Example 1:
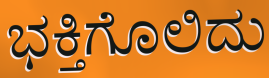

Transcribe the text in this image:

ಭಕ್ತಿಗೊಲಿದು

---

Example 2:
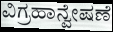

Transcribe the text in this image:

ವಿಗ್ರಹಾನ್ವೇಷಣೆ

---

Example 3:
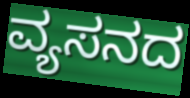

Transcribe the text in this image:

ವ್ಯಸನದ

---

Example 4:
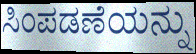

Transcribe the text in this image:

ಸಿಂಪಡಣೆಯನ್ನು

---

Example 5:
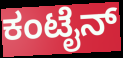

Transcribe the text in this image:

ಕಂಟೈನ್